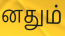
னதும்